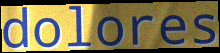
dolores